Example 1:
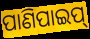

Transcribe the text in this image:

ପାଣିପାଇପ୍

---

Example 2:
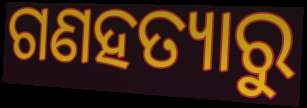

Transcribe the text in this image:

ଗଣହତ୍ୟାରୁ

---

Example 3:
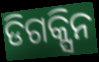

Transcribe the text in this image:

ଡିଗକ୍ସିନ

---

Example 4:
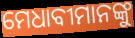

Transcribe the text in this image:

ମେଧାବୀମାନଙ୍କୁ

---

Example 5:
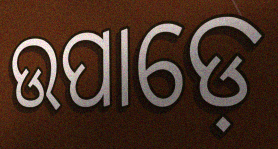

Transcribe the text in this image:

ଉପାଡ଼େ